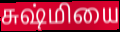
சுஷ்மியை